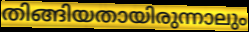
തിങ്ങിയതായിരുന്നാലും